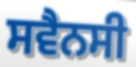
ਸਵੈਨਸੀ